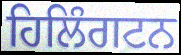
ਹਿਲਿੰਗਟਨ